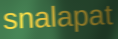
snalapat